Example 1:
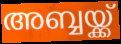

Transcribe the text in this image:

അബ്ബയ്ക്ക്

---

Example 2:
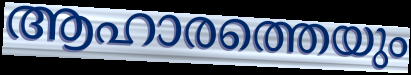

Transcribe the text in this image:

ആഹാരത്തെയും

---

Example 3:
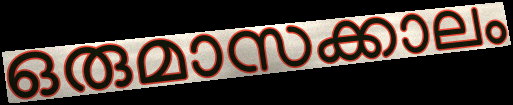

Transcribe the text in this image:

ഒരുമാസക്കാലം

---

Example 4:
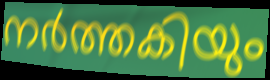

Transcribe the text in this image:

നർത്തകിയും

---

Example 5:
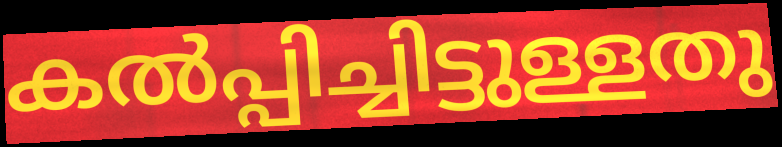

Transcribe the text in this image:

കൽപ്പിച്ചിട്ടുള്ളതു